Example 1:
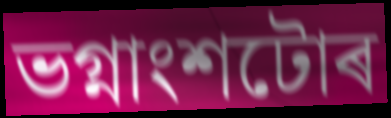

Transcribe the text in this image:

ভগ্নাংশটোৰ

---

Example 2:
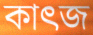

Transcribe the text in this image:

কাৎজ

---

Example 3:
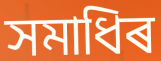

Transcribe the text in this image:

সমাধিৰ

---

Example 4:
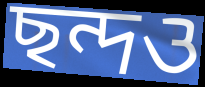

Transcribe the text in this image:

ছন্দও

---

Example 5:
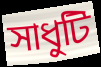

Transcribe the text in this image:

সাধুটি